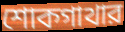
শোকগাথার